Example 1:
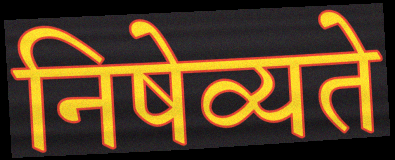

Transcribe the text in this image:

निषेव्यते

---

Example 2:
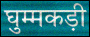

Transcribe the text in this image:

घुम्मकड़ी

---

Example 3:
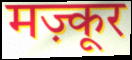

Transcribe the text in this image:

मज़्कूर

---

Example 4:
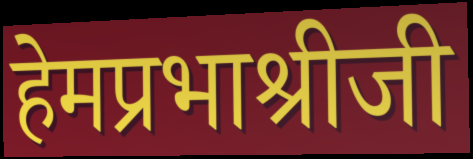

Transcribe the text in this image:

हेमप्रभाश्रीजी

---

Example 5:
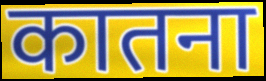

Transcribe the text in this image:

कातना